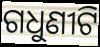
ଗଧୁଣୀଟି